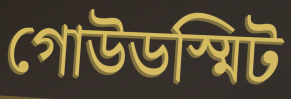
গোউডস্মিট